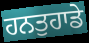
ਹਨਤੁਹਾਡੇ